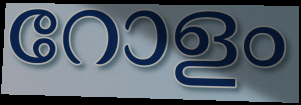
റോളം